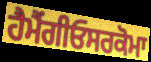
ਹੈਮੈਂਗੀਓਸਰਕੋਮਾ